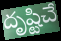
దృష్టిచే